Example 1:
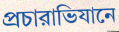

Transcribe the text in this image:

প্রচারাভিযানে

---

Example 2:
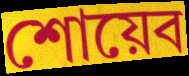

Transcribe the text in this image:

শোয়েব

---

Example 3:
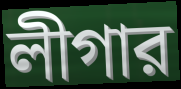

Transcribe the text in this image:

লীগার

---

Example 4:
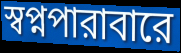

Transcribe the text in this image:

স্বপ্নপারাবারে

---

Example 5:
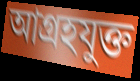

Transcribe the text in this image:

আগ্রহযুক্ত